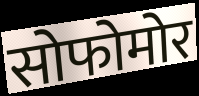
सोफोमोर